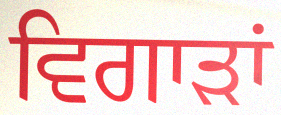
ਵਿਗਾੜਾਂ